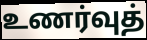
உணர்வுத்